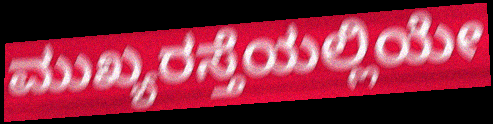
ಮುಖ್ಯರಸ್ತೆಯಲ್ಲಿಯೇ